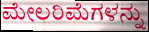
ಮೇಲರಿಮೆಗಳನ್ನು